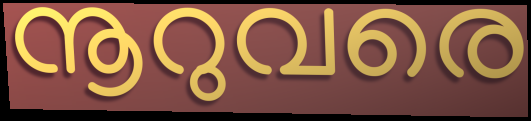
നൂറുവരെ